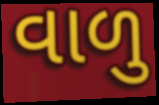
વાળુ